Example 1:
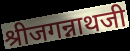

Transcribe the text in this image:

श्रीजगन्नाथजी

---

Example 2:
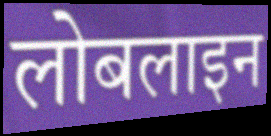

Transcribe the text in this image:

लोबलाइन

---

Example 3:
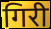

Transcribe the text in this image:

गिरी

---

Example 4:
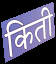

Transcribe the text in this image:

किती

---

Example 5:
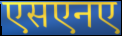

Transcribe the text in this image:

एसएनए